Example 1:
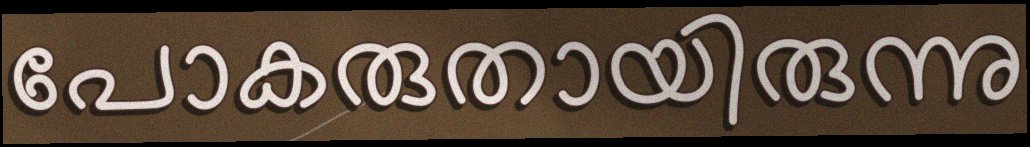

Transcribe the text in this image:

പോകരുതായിരുന്നു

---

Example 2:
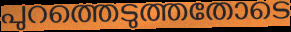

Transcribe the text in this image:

പുറത്തെടുത്തതോടെ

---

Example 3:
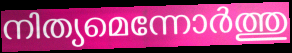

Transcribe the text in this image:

നിത്യമെന്നോർത്തു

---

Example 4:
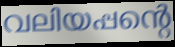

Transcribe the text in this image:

വലിയപ്പന്റെ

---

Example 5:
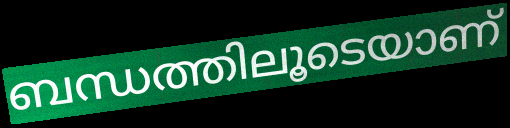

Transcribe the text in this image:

ബന്ധത്തിലൂടെയാണ്